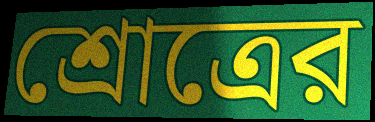
শ্রোত্রের